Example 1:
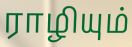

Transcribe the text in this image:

ராழியும்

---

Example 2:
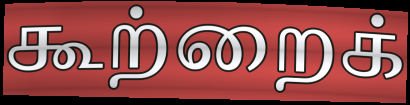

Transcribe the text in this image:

கூற்றைக்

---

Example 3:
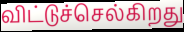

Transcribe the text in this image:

விட்டுச்செல்கிறது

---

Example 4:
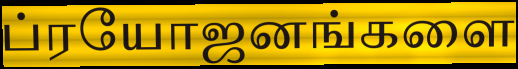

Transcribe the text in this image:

ப்ரயோஜனங்களை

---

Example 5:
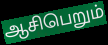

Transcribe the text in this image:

ஆசிபெறும்